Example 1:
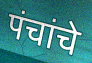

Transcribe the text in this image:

पंचांचे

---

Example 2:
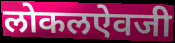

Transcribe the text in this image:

लोकलऐवजी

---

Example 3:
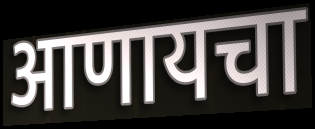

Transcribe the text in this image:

आणायचा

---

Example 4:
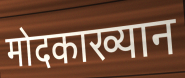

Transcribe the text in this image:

मोदकाख्यान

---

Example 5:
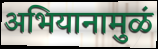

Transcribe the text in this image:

अभियानामुळं